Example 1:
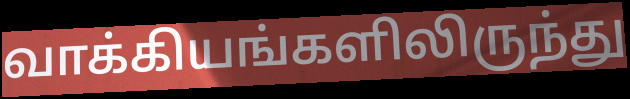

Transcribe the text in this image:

வாக்கியங்களிலிருந்து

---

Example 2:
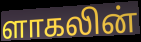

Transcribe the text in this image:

ளாகலின்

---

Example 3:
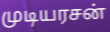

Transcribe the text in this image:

முடியரசன்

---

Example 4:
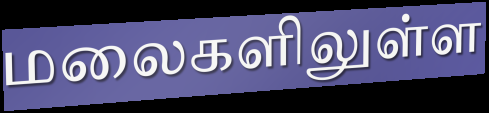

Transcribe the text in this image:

மலைகளிலுள்ள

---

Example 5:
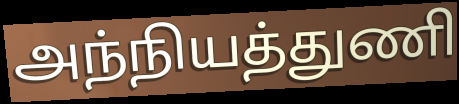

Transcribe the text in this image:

அந்நியத்துணி